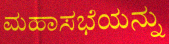
ಮಹಾಸಭೆಯನ್ನು